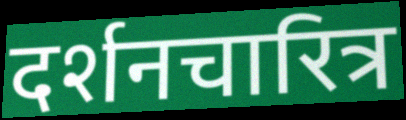
दर्शनचारित्र